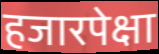
हजारपेक्षा